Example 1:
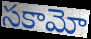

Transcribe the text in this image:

సకామో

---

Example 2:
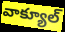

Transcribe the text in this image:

వాక్యూల్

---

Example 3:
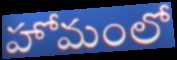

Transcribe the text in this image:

హోమంలో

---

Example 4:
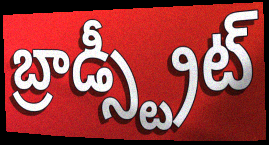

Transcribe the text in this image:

బ్రాడ్స్ట్రీట్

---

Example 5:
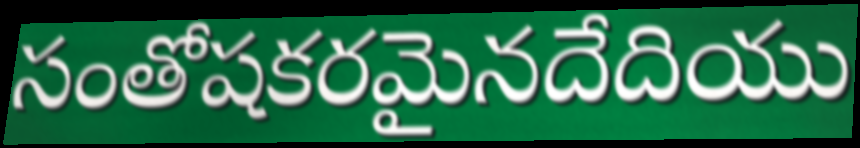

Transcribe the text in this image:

సంతోషకరమైనదేదియు